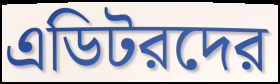
এডিটরদের